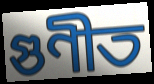
গুণীত